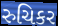
રુચિકર